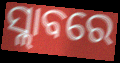
ସ୍ଲାବରେ